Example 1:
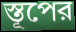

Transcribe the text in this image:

স্তূপের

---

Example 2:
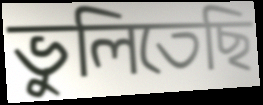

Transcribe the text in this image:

ভুলিতেছি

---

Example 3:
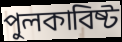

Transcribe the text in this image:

পুলকাবিষ্ট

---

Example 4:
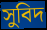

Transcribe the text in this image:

সুবিদ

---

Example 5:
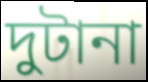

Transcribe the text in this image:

দুটানা